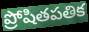
ప్రోషితపతిక